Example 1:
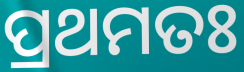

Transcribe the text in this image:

ପ୍ରଥମତଃ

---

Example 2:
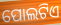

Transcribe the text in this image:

ପୋଲଟିଏ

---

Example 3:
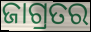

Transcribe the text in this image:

ଜାଗ୍ରତର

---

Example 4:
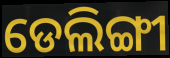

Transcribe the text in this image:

ଡେଲିଙ୍ଗୀ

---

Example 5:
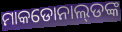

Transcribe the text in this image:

ମାକଡୋନାଲ୍‍ଡଙ୍କ